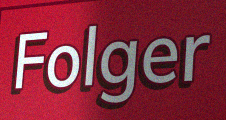
Folger